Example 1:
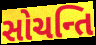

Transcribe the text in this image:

સોચન્તિ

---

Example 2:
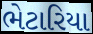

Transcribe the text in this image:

ભેટારિયા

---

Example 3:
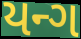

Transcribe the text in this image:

યન્ગ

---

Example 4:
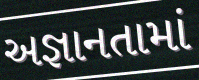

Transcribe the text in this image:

અજ્ઞાનતામાં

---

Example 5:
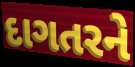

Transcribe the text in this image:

દાગતરને